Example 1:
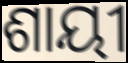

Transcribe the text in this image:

ଶାୟୀ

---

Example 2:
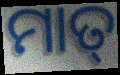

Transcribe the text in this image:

ମାତ୍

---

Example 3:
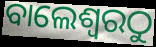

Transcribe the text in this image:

ବାଲେଶ୍ୱରଠୁ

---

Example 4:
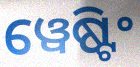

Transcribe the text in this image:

ୱେଷ୍ଟିଂ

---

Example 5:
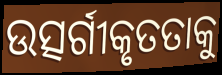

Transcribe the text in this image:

ଉତ୍ସର୍ଗୀକୃତତାକୁ